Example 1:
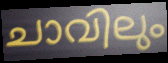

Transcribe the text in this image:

ചാവിലും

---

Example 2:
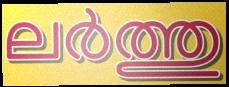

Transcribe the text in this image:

ലർത്തു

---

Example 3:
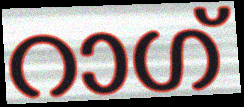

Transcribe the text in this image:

റാഗ്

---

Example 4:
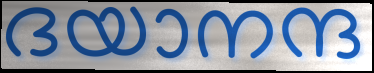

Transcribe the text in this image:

ദയാനന്ദ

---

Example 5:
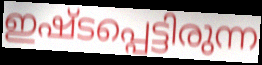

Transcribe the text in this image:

ഇഷ്ടപ്പെട്ടിരുന്ന